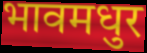
भावमधुर